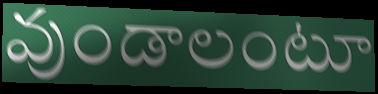
వుండాలంటూ